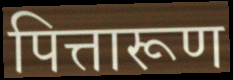
पित्तारूण